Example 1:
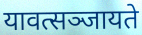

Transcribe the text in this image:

यावत्सञ्जायते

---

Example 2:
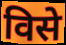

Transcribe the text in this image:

विसे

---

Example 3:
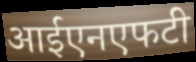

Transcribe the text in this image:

आईएनएफटी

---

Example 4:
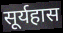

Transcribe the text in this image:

सूर्यहास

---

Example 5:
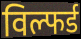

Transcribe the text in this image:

विल्फर्ड